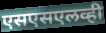
एसएसएलव्ही